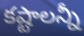
కష్టాలన్నీ